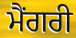
ਮੈਂਗਰੀ